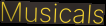
Musicals